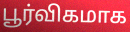
பூர்விகமாக